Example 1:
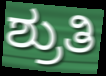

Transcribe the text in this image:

ಶ್ರುತಿ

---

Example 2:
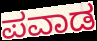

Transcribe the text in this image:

ಪವಾಡ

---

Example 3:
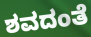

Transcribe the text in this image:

ಶವದಂತೆ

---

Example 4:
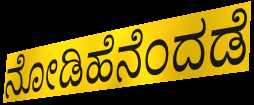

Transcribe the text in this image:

ನೋಡಿಹೆನೆಂದಡೆ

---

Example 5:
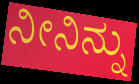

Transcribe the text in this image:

ನೀನಿನ್ನು